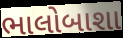
ભાલોબાશા